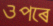
ওপৰে